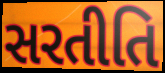
સરતીતિ